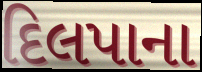
દિલપાના